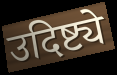
उदिष्ट्ये